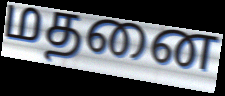
மதனை